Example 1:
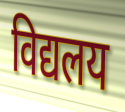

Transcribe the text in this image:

विद्यलय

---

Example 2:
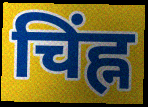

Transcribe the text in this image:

चिंह्न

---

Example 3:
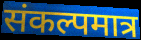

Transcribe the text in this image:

संकल्पमात्र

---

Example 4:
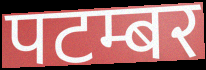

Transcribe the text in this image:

पटम्बर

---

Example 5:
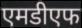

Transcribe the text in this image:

एमडीएफ